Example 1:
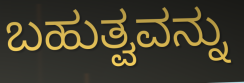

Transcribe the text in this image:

ಬಹುತ್ವವನ್ನು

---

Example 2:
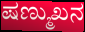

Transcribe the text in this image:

ಷಣ್ಮುಖನ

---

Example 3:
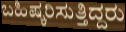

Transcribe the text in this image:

ಬಹಿಷ್ಕರಿಸುತ್ತಿದ್ದರು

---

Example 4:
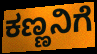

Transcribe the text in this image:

ಕಣ್ಣನಿಗೆ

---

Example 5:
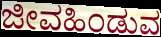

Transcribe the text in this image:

ಜೀವಹಿಂಡುವ